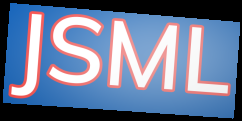
JSML